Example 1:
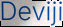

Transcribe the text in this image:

Deviji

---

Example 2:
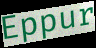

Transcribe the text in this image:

Eppur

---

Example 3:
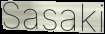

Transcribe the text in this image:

Sasaki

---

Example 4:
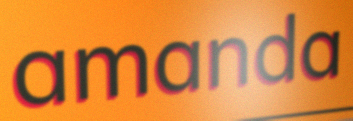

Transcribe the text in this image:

amanda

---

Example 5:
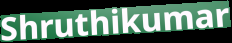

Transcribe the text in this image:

Shruthikumar